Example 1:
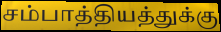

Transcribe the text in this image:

சம்பாத்தியத்துக்கு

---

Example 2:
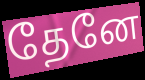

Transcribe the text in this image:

தேனே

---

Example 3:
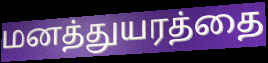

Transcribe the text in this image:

மனத்துயரத்தை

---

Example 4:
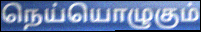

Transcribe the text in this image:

நெய்யொழுகும்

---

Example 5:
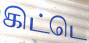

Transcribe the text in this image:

கிட்டெ